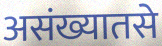
असंख्यातसे